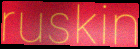
ruskin